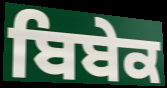
ਬਿਬੇਕ